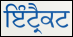
ਇੰਟ੍ਰੈਕਟ